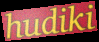
hudiki